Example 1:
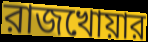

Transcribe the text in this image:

রাজখোয়ার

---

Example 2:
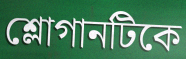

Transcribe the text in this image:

শ্লোগানটিকে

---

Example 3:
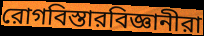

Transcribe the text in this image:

রোগবিস্তারবিজ্ঞানীরা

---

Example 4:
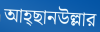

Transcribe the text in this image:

আহ্ছানউল্লার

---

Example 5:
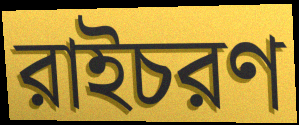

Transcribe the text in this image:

রাইচরণ